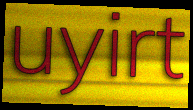
uyirt